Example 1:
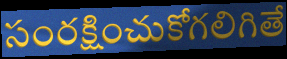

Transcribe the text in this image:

సంరక్షించుకోగలిగితే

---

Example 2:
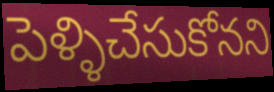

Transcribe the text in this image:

పెళ్ళిచేసుకోనని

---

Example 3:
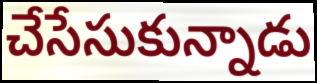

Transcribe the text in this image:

చేసేసుకున్నాడు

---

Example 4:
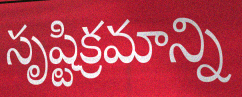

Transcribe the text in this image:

సృష్టిక్రమాన్ని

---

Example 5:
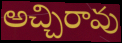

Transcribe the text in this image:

అచ్చిరావు